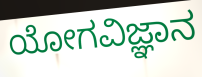
ಯೋಗವಿಜ್ಞಾನ